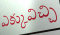
ఎక్కువిచ్చి